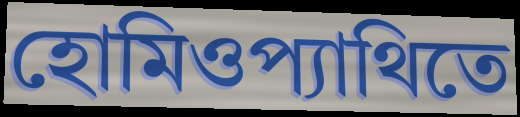
হোমিওপ্যাথিতে